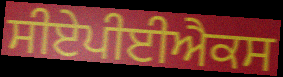
ਸੀਏਪੀਈਐਕਸ